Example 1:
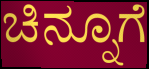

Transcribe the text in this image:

ಚಿನ್ನೂಗೆ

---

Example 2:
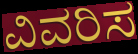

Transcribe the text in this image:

ವಿವರಿಸ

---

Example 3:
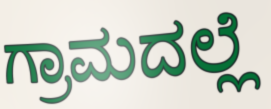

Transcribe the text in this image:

ಗ್ರಾಮದಲ್ಲೆ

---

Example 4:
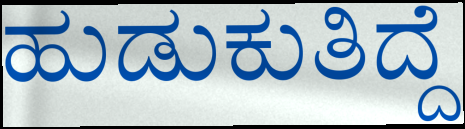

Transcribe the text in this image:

ಹುಡುಕುತಿದ್ದೆ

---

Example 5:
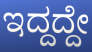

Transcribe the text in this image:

ಇದ್ದದ್ದೇ